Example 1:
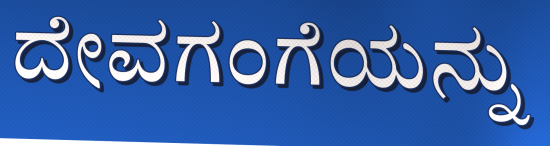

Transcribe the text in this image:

ದೇವಗಂಗೆಯನ್ನು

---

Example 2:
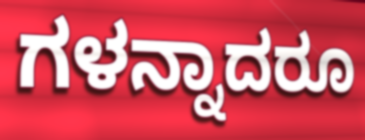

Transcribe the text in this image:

ಗಳನ್ನಾದರೂ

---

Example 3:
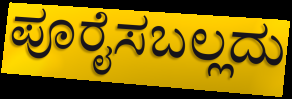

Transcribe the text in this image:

ಪೂರೈಸಬಲ್ಲದು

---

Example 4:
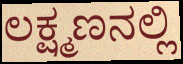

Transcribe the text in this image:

ಲಕ್ಷ್ಮಣನಲ್ಲಿ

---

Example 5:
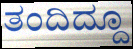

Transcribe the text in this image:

ತಂದಿದ್ದೂ